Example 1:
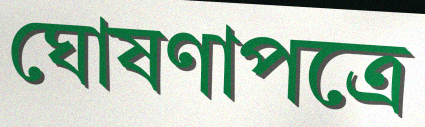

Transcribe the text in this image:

ঘোষণাপত্রে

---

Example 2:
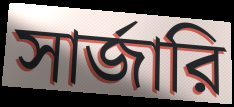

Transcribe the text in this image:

সার্জারি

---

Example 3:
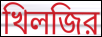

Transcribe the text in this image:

খিলজির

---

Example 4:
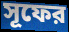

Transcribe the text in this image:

সূফের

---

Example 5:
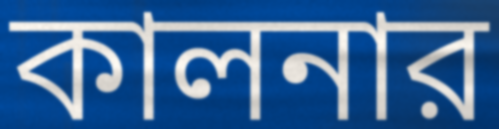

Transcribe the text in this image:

কালনার